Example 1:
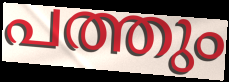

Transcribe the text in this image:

പത്തും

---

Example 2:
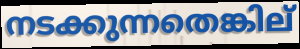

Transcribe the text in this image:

നടക്കുന്നതെങ്കില്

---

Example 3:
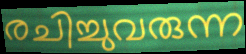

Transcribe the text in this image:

രചിച്ചുവരുന്ന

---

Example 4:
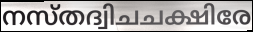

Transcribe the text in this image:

നസ്തദ്വിചചക്ഷിരേ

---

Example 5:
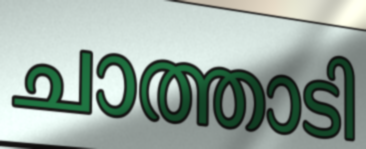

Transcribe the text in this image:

ചാത്താടി